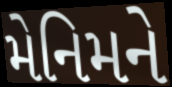
મેનિમને